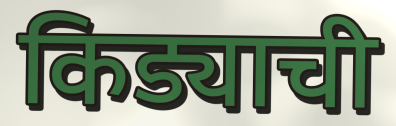
किड्याची